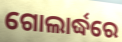
ଗୋଲାର୍ଦ୍ଧରେ